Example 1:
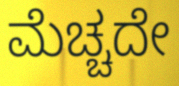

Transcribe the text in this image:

ಮೆಚ್ಚದೇ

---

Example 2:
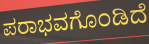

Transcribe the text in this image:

ಪರಾಭವಗೊಂಡಿದೆ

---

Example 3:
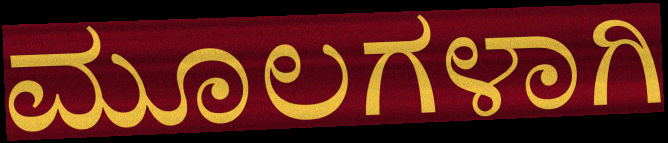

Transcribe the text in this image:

ಮೂಲಗಳಾಗಿ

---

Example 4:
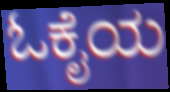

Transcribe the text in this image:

ಓಕೈಯ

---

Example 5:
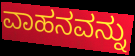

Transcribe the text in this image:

ವಾಹನವನ್ನು